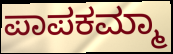
ಪಾಪಕಮ್ಮಾ